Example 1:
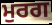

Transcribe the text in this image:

ਮੁਰਗ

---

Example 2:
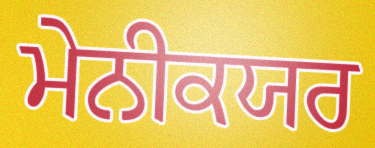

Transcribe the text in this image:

ਮੇਨੀਕਯਰ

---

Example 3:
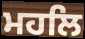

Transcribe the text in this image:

ਮਹਲਿ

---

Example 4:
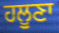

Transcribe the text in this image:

ਹਲੂਣਾ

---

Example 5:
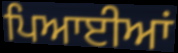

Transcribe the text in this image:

ਪਿਆਈਆਂ